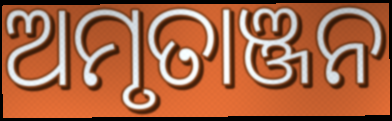
ଅମୃତାଞ୍ଜନ